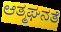
ಆತ್ಮಘನತೆ